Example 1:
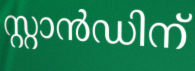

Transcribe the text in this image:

സ്റ്റാൻഡിന്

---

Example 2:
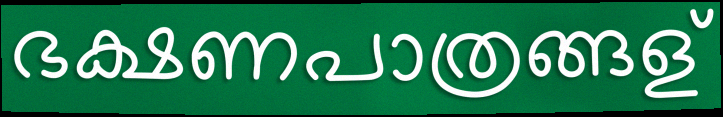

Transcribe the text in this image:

ഭക്ഷണപാത്രങ്ങള്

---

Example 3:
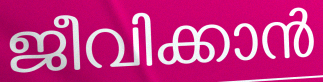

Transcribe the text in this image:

ജീവിക്കാൻ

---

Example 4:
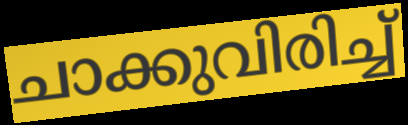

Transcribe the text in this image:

ചാക്കുവിരിച്ച്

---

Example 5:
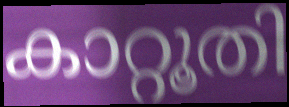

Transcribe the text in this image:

കാറ്റൂതി